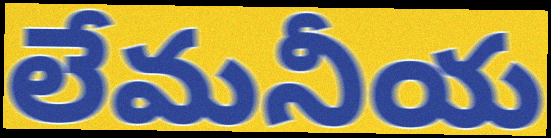
లేమనీయ